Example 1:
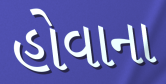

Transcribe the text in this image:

હોવાના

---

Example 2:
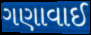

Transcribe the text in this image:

ગણાવાઈ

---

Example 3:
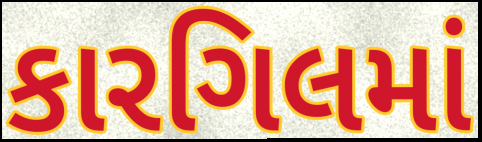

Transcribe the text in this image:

કારગિલમાં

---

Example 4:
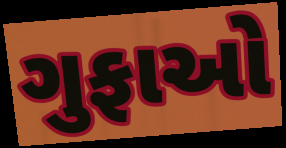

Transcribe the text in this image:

ગુફાઓ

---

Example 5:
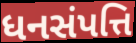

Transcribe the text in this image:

ધનસંપત્તિ